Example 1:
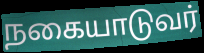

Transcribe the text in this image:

நகையாடுவர்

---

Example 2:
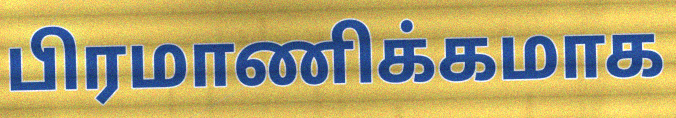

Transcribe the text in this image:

பிரமாணிக்கமாக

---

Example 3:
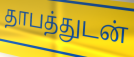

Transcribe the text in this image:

தாபத்துடன்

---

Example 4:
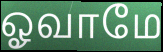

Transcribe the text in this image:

ஓவாமே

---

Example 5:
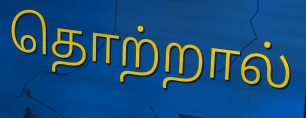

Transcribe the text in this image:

தொற்றால்